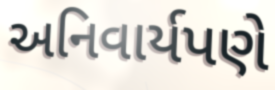
અનિવાર્યપણે